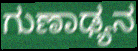
ಗುಣಾಢ್ಯನ